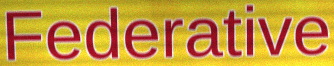
Federative